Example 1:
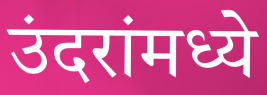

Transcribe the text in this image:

उंदरांमध्ये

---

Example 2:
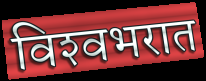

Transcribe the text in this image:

विश्वभरात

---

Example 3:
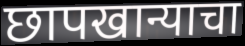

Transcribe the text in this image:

छापखान्याचा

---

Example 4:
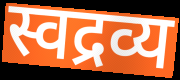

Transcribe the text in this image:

स्वद्रव्य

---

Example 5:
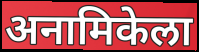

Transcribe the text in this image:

अनामिकेला